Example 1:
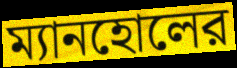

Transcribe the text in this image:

ম্যানহোলের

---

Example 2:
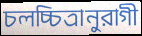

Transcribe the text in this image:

চলচ্চিত্রানুরাগী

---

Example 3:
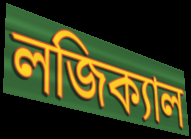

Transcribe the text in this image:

লজিক্যাল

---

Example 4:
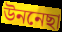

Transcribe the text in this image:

উননেছা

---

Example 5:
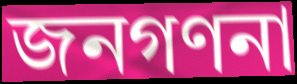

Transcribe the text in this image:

জনগণনা